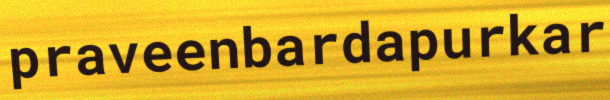
praveenbardapurkar